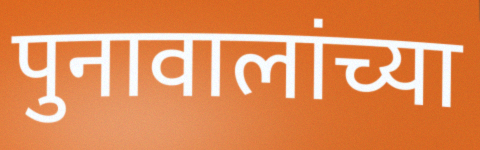
पुनावालांच्या